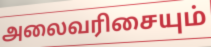
அலைவரிசையும்